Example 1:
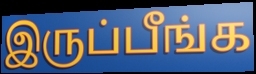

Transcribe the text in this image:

இருப்பீங்க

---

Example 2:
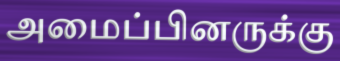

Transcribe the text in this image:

அமைப்பினருக்கு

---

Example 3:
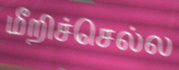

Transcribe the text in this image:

மீறிச்செல்ல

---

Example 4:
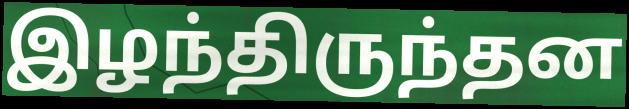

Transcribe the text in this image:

இழந்திருந்தன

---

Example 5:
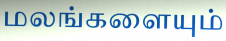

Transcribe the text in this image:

மலங்களையும்